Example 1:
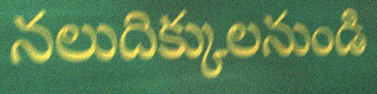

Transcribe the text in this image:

నలుదిక్కులనుండి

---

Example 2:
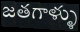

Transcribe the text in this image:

జతగాళ్ళు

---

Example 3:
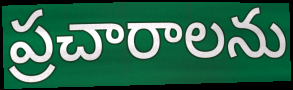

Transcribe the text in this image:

ప్రచారాలను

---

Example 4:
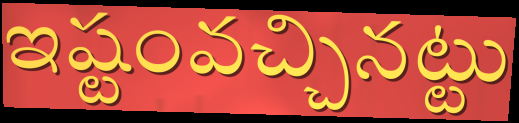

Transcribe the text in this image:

ఇష్టంవచ్చినట్టు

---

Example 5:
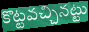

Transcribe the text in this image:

కొట్టవచ్చినట్టు